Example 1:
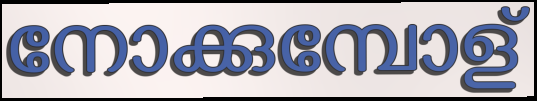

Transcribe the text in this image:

നോക്കുമ്പോള്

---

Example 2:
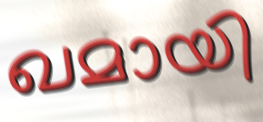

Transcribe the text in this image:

ഖമായി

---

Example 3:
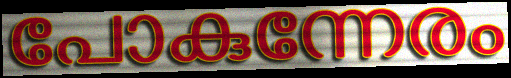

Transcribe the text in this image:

പോകുന്നേരം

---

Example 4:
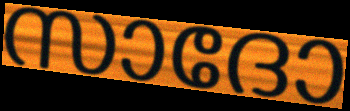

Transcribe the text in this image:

സാദോ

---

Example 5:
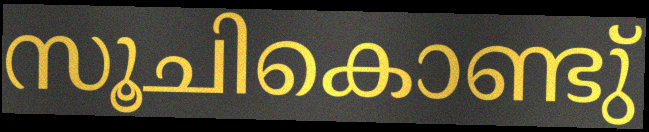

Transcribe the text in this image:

സൂചികൊണ്ടു്